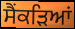
ਸੈਂਕੜਿਆਂ